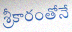
శ్రీకారంతోనే